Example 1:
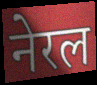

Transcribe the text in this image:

नेरल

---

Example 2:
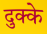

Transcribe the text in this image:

दुक्के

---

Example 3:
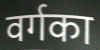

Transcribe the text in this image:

वर्गका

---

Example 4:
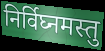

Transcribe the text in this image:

निर्विघ्नमस्तु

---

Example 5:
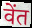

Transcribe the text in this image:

वेंत